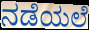
ನಡೆಯಲೆ